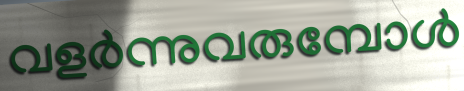
വളർന്നുവരുമ്പോൾ